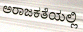
ಅರಾಜಕತೆಯಲ್ಲಿ